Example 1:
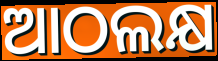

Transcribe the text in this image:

ଆଠଲକ୍ଷ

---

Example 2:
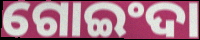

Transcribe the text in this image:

ଗୋଇଂଦା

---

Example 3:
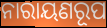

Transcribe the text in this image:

ନାରାୟଣରୂପ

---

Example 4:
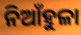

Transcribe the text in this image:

ନିଆଁହୁଳା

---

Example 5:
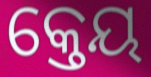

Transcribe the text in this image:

କ୍ତେୟ